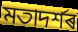
মতাদৰ্শৰ